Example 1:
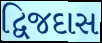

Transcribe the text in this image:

દ્વિજદાસ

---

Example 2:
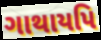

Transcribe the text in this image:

ગાથાયપિ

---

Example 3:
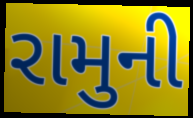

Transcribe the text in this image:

રામુની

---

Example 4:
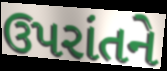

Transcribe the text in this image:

ઉપરાંતને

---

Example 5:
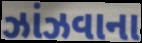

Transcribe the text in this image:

ઝાંઝવાના